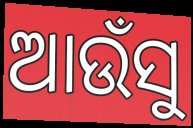
ଆଉଁସୁ